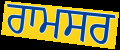
ਰਾਮਸਰ